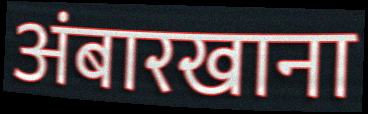
अंबारखाना